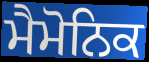
ਮੈਮੋਨਿਕ